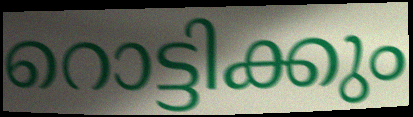
റൊട്ടിക്കും